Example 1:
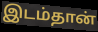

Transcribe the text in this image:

இடம்தான்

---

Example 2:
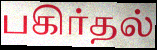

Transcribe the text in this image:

பகிர்தல்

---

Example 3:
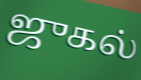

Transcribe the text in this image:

ஜுகல்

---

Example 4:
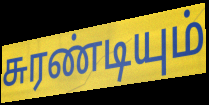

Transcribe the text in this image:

சுரண்டியும்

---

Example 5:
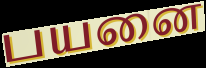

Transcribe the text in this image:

பயனை